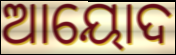
ଆୟୋଦ